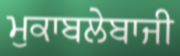
ਮੁਕਾਬਲੇਬਾਜੀ